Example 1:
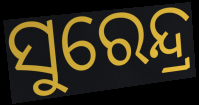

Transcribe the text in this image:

ସୁରେନ୍ଦ୍ର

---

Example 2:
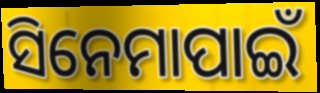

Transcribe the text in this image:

ସିନେମାପାଇଁ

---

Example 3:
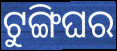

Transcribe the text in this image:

ଟୁଙ୍ଗିଘର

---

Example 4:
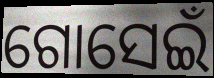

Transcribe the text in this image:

ଗୋସେଇଁ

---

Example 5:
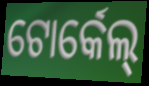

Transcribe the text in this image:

ଟୋର୍କେଲ୍